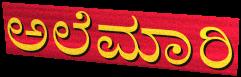
ಅಲೆಮಾರಿ